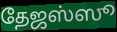
தேஜஸ்ஸூ